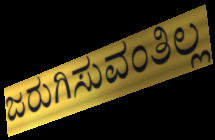
ಜರುಗಿಸುವಂತಿಲ್ಲ